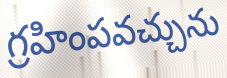
గ్రహింపవచ్చును